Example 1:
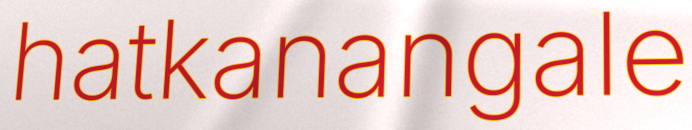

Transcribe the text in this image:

hatkanangale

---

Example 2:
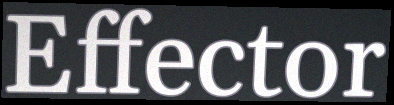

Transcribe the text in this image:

Effector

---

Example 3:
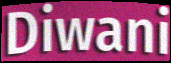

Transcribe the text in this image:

Diwani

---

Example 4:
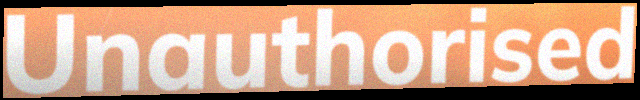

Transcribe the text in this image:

Unauthorised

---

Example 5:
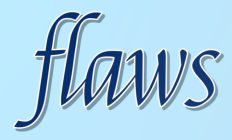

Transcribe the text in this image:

flaws